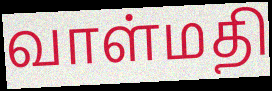
வாள்மதி